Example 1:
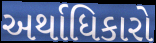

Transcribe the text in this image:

અર્થાધિકારો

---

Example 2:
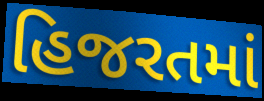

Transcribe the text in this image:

હિજરતમાં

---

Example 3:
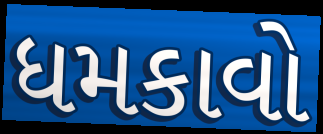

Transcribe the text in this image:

ધમકાવો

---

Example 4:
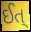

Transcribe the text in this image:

ઈત્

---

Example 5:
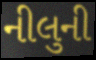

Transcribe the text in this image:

નીલુની